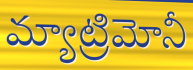
మ్యాట్రిమోనీ